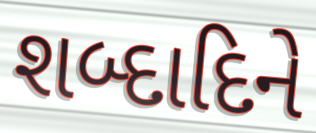
શબ્દાદિને